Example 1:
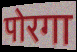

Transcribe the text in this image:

पोरगा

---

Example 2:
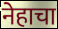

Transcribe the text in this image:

नेहाचा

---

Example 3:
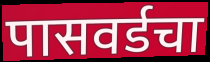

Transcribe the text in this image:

पासवर्डचा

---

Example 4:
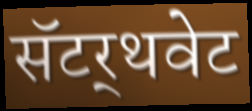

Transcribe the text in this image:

सॅटर्थवेट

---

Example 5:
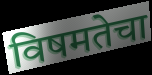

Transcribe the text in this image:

विषमतेचा